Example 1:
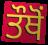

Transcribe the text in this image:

ਤੌਥੋਂ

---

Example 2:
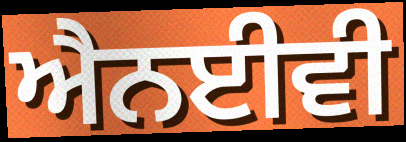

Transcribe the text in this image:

ਐਨਈਵੀ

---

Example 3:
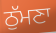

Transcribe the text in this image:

ਠੁੱਮਣਾ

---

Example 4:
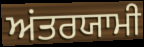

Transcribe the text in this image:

ਅਂਤਰਯਾਮੀ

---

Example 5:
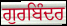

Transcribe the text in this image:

ਗੁਰਬਿੰਦਰ